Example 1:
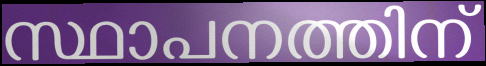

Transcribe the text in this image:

സ്ഥാപനത്തിന്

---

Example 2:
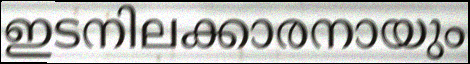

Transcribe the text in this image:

ഇടനിലക്കാരനായും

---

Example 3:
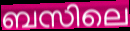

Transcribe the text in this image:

ബസിലെ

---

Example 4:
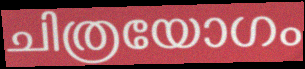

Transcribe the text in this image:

ചിത്രയോഗം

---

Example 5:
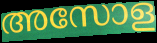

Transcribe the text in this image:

അസോള